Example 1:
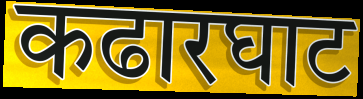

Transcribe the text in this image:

कढारघाट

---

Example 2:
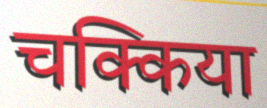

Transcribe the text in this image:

चक्किया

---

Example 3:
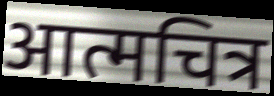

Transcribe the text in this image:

आत्मचित्र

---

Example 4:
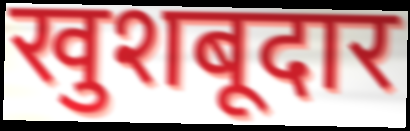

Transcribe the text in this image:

खुशबूदार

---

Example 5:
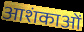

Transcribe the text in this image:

आशंकाओं